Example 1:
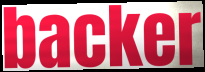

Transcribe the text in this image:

backer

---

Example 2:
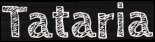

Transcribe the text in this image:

Tataria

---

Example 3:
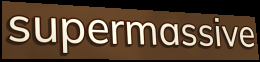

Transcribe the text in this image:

supermassive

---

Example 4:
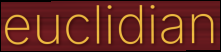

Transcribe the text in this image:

euclidian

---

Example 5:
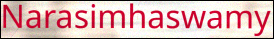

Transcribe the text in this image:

Narasimhaswamy